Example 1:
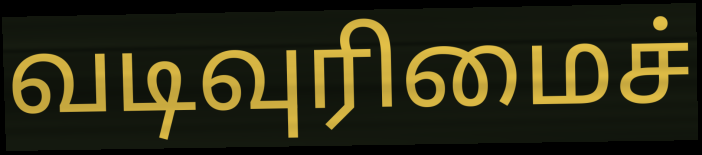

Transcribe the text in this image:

வடிவுரிமைச்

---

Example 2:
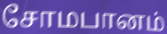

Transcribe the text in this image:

சோமபானம்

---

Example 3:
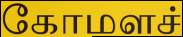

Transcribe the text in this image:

கோமளச்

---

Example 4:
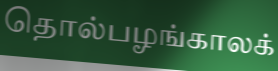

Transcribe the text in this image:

தொல்பழங்காலக்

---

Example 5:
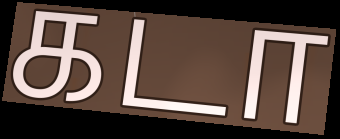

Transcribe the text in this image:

கடா